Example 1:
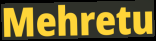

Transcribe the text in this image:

Mehretu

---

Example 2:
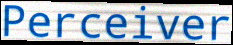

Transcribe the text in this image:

Perceiver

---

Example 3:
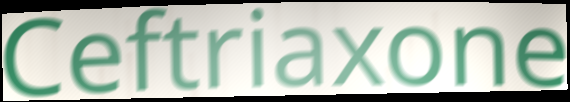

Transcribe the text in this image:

Ceftriaxone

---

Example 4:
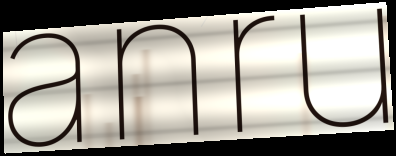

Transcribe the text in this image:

anru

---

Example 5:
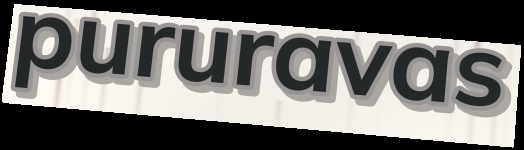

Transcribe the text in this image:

pururavas